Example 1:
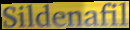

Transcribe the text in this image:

Sildenafil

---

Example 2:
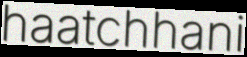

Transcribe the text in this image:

haatchhani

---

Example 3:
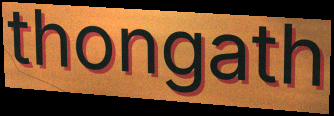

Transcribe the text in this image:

thongath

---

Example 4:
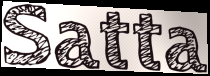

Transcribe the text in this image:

Satta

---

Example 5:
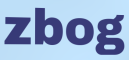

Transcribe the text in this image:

zbog